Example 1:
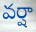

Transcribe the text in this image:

వర్షా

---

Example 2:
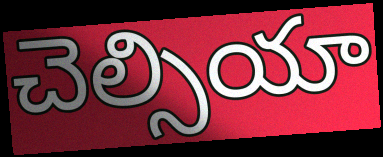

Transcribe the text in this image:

చెల్సియా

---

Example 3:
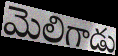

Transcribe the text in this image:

మెలిగాడు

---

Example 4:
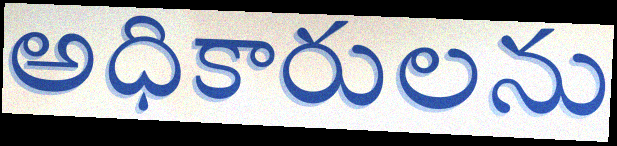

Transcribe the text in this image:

అధికారులను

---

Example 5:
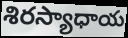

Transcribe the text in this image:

శిరస్యాధాయ